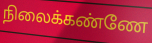
நிலைக்கண்ணே